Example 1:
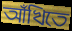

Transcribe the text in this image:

আঁখিতে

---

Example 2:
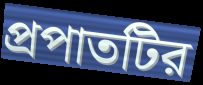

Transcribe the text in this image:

প্রপাতটির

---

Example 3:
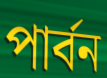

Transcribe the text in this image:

পার্বন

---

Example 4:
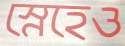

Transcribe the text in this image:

স্নেহেও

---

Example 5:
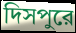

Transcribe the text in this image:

দিসপুরে